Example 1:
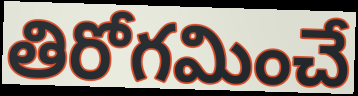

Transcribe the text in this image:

తిరోగమించే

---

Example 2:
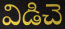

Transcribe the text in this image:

విడిచె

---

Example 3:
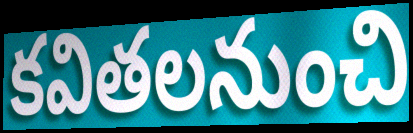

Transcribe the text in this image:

కవితలనుంచి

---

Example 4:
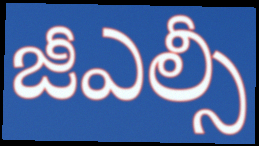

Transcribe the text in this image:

జీఎల్సీ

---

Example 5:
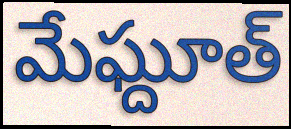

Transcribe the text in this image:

మేఘ్దూత్